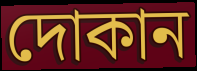
দোকান